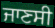
ਜਾਣਸੀ